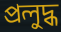
প্রলুদ্ধ